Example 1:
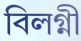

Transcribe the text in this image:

বিলগ্নী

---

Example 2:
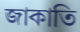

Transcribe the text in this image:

জাকাতি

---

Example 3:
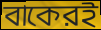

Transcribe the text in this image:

বাকেরই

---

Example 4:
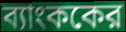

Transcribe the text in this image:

ব্যাংককের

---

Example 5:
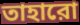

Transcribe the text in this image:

তাহারো